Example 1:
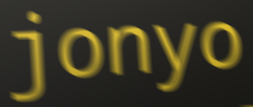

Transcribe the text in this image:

jonyo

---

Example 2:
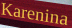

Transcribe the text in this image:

Karenina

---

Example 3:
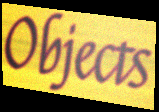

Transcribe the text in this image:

Objects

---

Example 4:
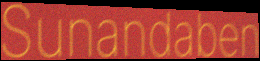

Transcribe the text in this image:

Sunandaben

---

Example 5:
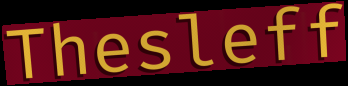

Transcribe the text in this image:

Thesleff